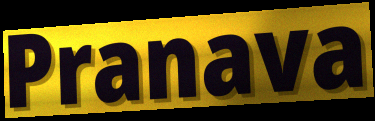
Pranava